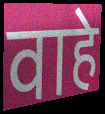
वाहे